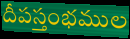
దీపస్తంభముల